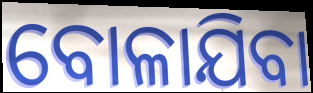
ବୋଳାଯିବା